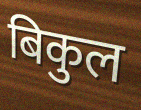
बिकुल